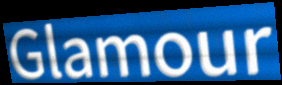
Glamour